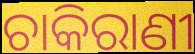
ଚାକିରାଣୀ